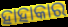
ହାହାକାର